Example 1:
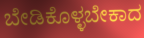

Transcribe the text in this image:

ಬೇಡಿಕೊಳ್ಳಬೇಕಾದ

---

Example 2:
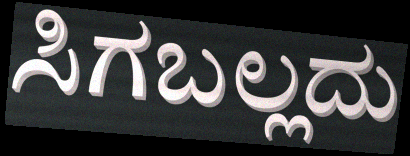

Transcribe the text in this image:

ಸಿಗಬಲ್ಲದು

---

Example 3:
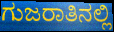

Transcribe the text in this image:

ಗುಜರಾತಿನಲ್ಲಿ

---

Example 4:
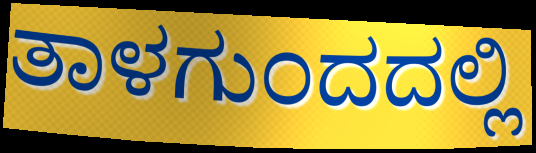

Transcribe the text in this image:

ತಾಳಗುಂದದಲ್ಲಿ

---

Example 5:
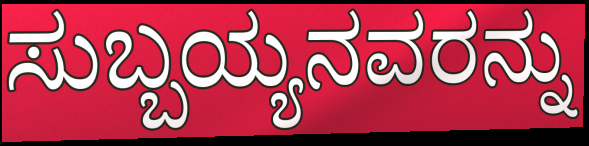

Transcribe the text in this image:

ಸುಬ್ಬಯ್ಯನವರನ್ನು